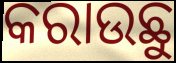
କରାଉଛୁ